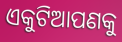
ଏକୁଟିଆପଣକୁ